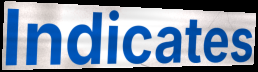
Indicates